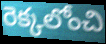
రెక్కలోంచి